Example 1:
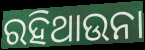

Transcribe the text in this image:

ରହିଥାଉନା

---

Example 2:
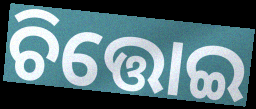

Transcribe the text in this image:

ଚିତ୍ତୋଇ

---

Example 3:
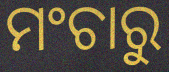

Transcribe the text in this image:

ମଂଚାରୁ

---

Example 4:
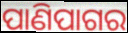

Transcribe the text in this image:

ପାଣିପାଗର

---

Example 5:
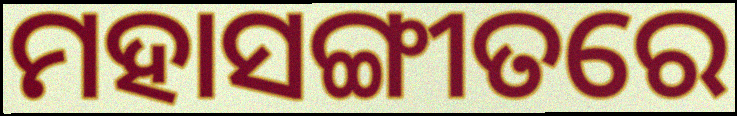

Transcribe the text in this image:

ମହାସଙ୍ଗୀତରେ